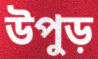
উপুড়